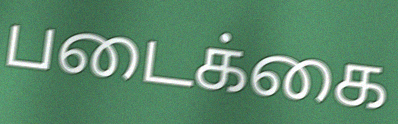
படைக்கை